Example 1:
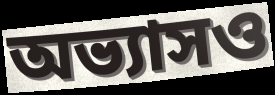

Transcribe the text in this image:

অভ্যাসও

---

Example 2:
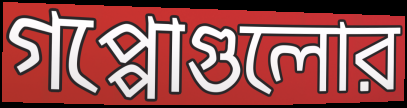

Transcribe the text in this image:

গপ্পোগুলোর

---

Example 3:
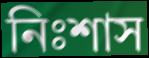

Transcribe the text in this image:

নিঃশাস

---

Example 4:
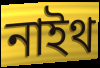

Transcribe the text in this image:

নাইথ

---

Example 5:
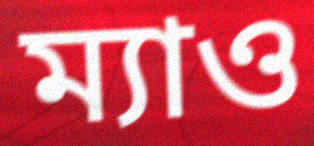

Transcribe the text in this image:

ম্যাও